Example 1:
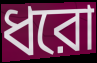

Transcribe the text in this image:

ধরো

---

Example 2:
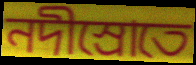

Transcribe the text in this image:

নদীস্রোতে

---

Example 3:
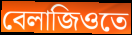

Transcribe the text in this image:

বেলাজিওতে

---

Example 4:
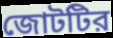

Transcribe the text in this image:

জোটটির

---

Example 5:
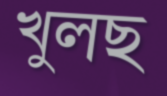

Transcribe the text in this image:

খুলছ